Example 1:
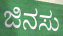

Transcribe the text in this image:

ಜಿನಸು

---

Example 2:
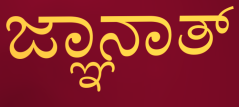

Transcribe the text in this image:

ಜ್ಞಾನಾತ್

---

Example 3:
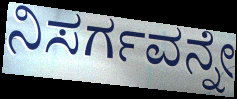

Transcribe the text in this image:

ನಿಸರ್ಗವನ್ನೇ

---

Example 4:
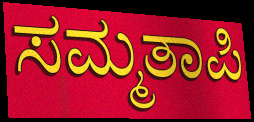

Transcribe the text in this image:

ಸಮ್ಮತಾಪಿ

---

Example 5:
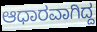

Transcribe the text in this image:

ಆಧಾರವಾಗಿದ್ದ